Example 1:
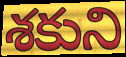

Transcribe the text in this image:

శకుని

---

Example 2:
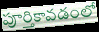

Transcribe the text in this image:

పూర్తికావడంలో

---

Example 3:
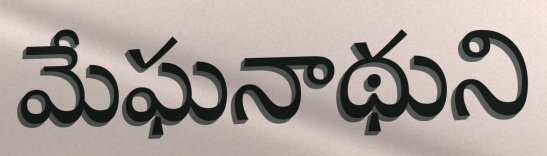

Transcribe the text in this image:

మేఘనాథుని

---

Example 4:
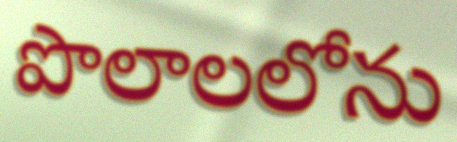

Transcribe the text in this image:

పొలాలలోను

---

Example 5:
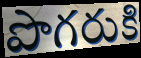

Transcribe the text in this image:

పొగరుకి